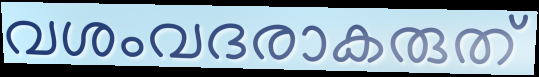
വശംവദരാകരുത്